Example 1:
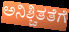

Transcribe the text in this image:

ಅನಿಶ್ಚಿತತೆಗೆ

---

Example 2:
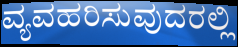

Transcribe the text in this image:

ವ್ಯವಹರಿಸುವುದರಲ್ಲಿ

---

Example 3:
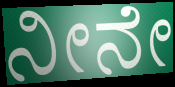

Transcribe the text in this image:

ನೀನೇ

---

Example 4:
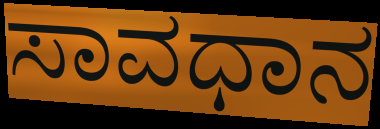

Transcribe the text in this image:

ಸಾವಧಾನ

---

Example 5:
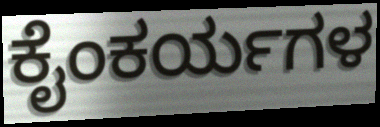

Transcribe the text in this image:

ಕೈಂಕರ್ಯಗಳ